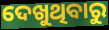
ଦେଖୁଥିବାରୁ